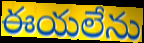
ఈయలేను